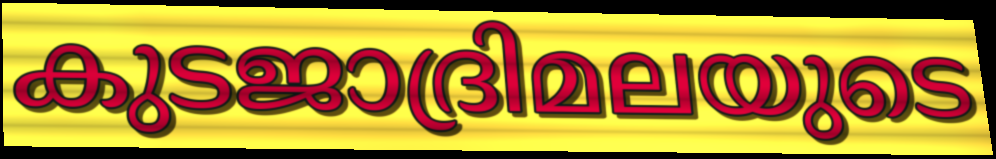
കുടജാദ്രിമലയുടെ